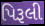
પિરૂલી